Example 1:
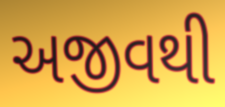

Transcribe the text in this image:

અજીવથી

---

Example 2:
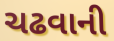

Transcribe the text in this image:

ચઢવાની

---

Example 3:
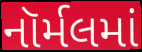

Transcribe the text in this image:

નૉર્મલમાં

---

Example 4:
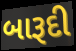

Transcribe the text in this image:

બારૂદી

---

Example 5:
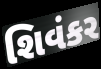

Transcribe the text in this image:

શિવંકર